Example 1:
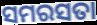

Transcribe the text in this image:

ସମରସତା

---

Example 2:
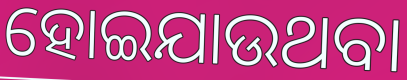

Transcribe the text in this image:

ହୋଇଯାଉଥବା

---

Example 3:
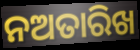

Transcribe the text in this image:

ନଅତାରିଖ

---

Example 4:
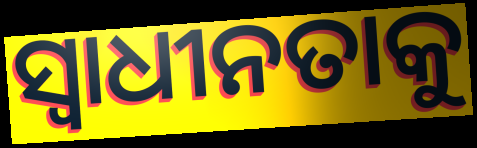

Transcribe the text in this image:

ସ୍ବାଧୀନତାକୁ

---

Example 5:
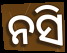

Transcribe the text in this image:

ନସି